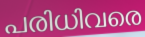
പരിധിവരെ